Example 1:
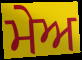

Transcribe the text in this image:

ਮੇਅ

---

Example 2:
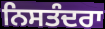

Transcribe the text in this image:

ਨਿਸਤੰਦਰਾ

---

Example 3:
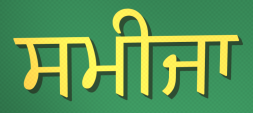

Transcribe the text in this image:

ਸਮੀਜਾ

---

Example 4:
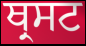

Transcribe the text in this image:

ਥ੍ਰਸਟ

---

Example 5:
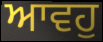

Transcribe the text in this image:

ਆਵਹੁ